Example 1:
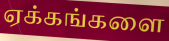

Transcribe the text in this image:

ஏக்கங்களை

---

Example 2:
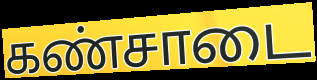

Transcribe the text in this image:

கண்சாடை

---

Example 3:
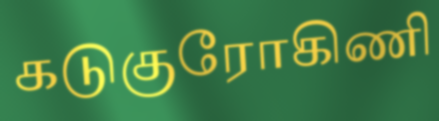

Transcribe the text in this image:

கடுகுரோகிணி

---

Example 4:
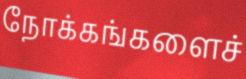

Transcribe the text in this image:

நோக்கங்களைச்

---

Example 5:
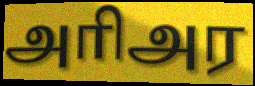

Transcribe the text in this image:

அரிஅர